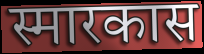
स्मारकास